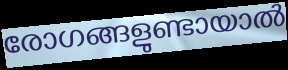
രോഗങ്ങളുണ്ടായാൽ